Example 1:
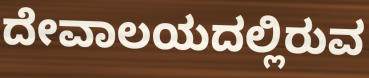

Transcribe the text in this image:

ದೇವಾಲಯದಲ್ಲಿರುವ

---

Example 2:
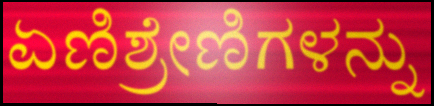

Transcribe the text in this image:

ಏಣಿಶ್ರೇಣಿಗಳನ್ನು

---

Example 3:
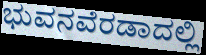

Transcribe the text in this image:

ಭುವನವೆರಡಾದಲ್ಲಿ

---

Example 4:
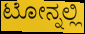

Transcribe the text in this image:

ಟೋನ್ನಲ್ಲಿ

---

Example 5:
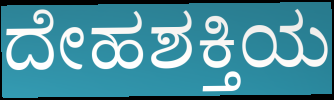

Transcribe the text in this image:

ದೇಹಶಕ್ತಿಯ